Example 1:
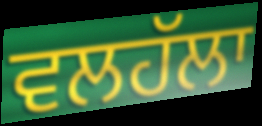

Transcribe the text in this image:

ਵਲਹੱਲਾ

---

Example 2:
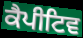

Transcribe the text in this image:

ਕੈਪੀਟਿਵ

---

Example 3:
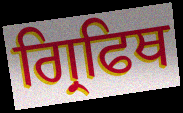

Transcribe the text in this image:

ਗ੍ਰਿਫਿਥ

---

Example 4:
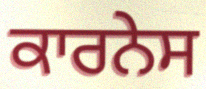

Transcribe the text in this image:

ਕਾਰਨੇਸ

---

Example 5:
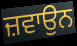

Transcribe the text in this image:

ਜ਼ਵਾਉਨ